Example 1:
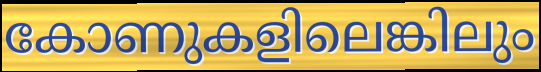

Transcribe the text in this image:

കോണുകളിലെങ്കിലും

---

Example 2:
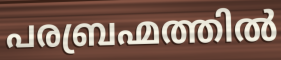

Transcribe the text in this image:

പരബ്രഹ്മത്തിൽ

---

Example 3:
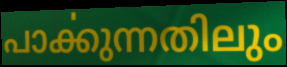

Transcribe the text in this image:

പാൎക്കുന്നതിലും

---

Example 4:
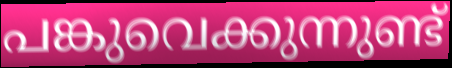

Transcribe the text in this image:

പങ്കുവെക്കുന്നുണ്ട്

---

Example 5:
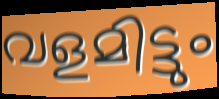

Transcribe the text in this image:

വളമിട്ടും